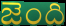
జెంది